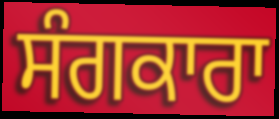
ਸੰਗਕਾਰਾ